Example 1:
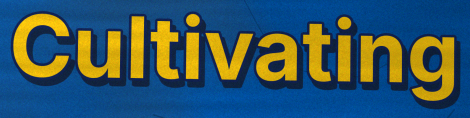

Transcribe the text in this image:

Cultivating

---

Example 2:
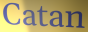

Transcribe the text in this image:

Catan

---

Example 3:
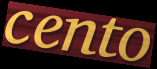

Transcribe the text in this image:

cento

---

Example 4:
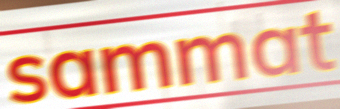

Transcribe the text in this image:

sammat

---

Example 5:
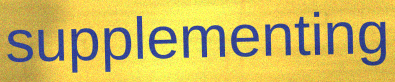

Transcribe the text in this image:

supplementing